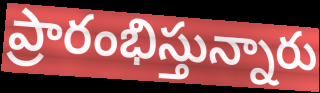
ప్రారంభిస్తున్నారు